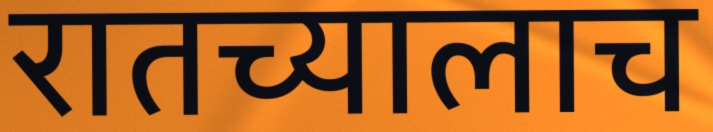
रातच्यालाच